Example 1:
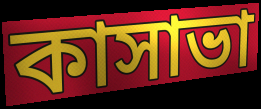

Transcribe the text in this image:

কাসাভা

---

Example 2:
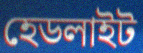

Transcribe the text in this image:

হেডলাইট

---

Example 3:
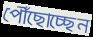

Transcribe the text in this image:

পৌঁছোচ্ছেন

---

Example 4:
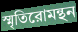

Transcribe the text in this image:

স্মৃতিরোমন্থন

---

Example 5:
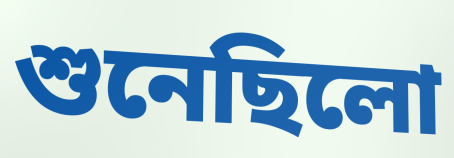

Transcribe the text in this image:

শুনেছিলো